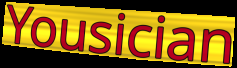
Yousician